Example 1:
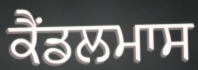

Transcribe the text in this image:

ਕੈਂਡਲਮਾਸ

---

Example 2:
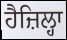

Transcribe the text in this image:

ਹੈਜ਼ਿਲ੍ਹਾ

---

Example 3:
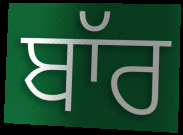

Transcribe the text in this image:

ਬਾੱਰ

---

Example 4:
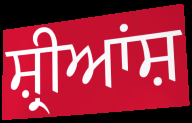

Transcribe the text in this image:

ਸ਼੍ਰੀਆਂਸ਼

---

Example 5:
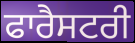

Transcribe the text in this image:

ਫਾਰੈਸਟਰੀ